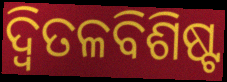
ଦ୍ୱିତଳବିଶିଷ୍ଟ